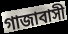
গাজাবাসী